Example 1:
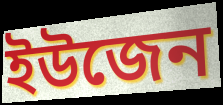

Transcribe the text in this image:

ইউজেন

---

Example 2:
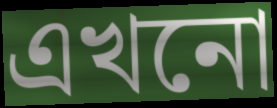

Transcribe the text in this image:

এখনো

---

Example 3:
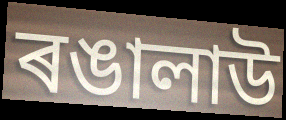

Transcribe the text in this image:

ৰঙালাউ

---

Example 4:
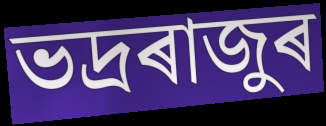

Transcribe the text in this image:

ভদ্ৰৰাজুৰ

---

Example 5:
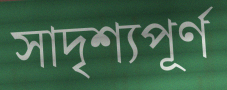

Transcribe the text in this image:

সাদৃশ্যপূৰ্ণ